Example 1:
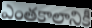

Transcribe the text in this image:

ఎంతకాలానికీ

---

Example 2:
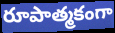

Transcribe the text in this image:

రూపాత్మకంగా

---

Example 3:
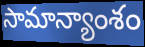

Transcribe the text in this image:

సామాన్యాంశం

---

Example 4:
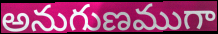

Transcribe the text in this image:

అనుగుణముగా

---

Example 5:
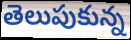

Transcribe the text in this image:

తెలుపుకున్న